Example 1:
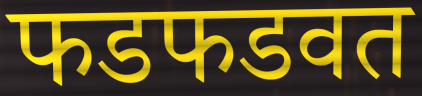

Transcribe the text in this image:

फडफडवत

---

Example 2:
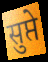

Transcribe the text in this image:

सुप्ते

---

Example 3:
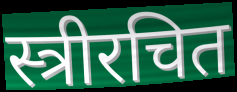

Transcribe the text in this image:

स्त्रीरचित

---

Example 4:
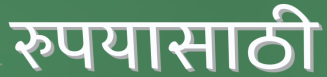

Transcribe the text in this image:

रुपयासाठी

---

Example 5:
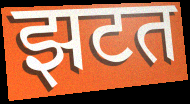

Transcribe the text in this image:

झटत